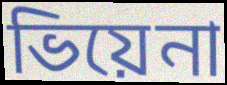
ভিয়েনা